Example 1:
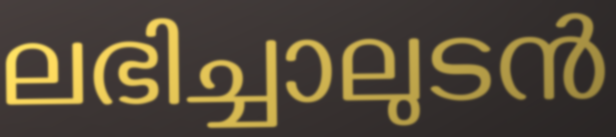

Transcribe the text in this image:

ലഭിച്ചാലുടൻ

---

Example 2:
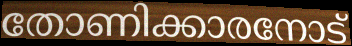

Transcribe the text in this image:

തോണിക്കാരനോട്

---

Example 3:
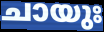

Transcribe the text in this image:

ചായുഃ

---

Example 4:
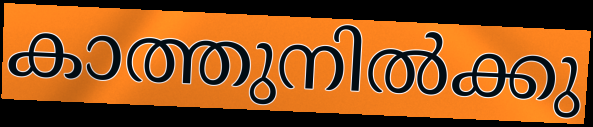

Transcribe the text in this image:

കാത്തുനിൽക്കു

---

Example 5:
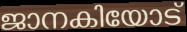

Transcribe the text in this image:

ജാനകിയോട്